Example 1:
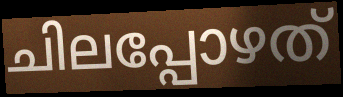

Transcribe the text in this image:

ചിലപ്പോഴത്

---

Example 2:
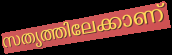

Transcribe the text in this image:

സത്യത്തിലേക്കാണ്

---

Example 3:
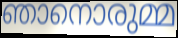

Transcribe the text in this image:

ഞാനൊരുമ്മ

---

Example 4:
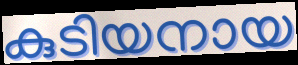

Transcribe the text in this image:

കുടിയനായ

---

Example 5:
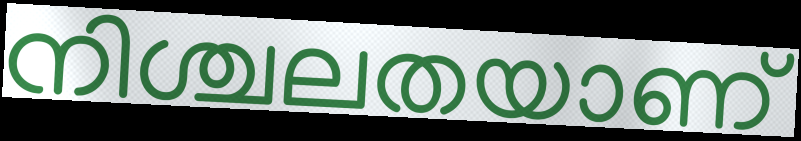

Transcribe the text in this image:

നിശ്ചലതയാണ്